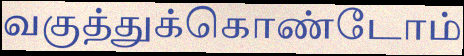
வகுத்துக்கொண்டோம்